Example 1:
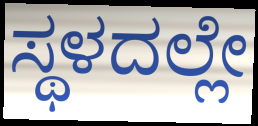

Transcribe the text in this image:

ಸ್ಥಳದಲ್ಲೇ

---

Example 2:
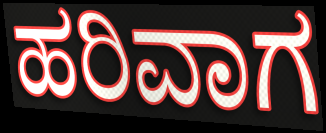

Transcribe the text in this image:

ಹರಿವಾಗ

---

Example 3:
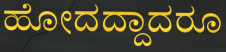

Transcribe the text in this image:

ಹೋದದ್ದಾದರೂ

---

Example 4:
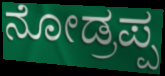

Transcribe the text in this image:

ನೋಡ್ರಪ್ಪ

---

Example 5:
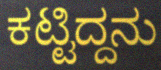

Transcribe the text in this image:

ಕಟ್ಟಿದ್ದನು